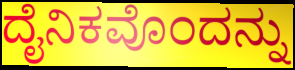
ದೈನಿಕವೊಂದನ್ನು